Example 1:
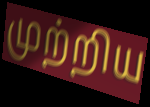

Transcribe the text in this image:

முற்றிய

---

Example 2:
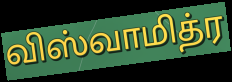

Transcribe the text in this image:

விஸ்வாமித்ர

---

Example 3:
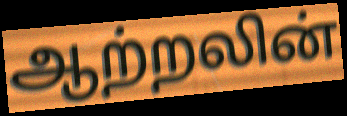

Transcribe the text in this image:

ஆற்றலின்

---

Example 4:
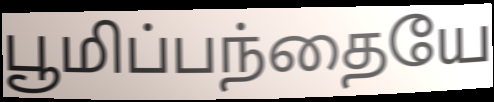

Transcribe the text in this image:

பூமிப்பந்தையே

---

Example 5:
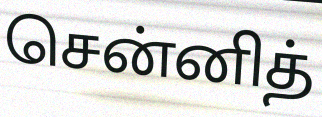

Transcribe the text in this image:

சென்னித்